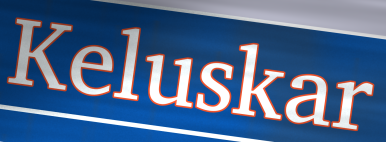
Keluskar